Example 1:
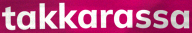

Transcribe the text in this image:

takkarassa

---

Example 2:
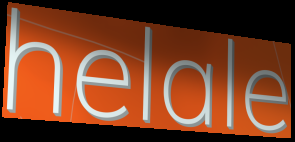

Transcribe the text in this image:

helale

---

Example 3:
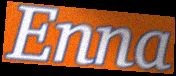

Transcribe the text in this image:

Enna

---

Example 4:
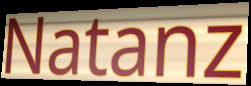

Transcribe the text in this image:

Natanz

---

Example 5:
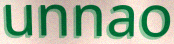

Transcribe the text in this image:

unnao